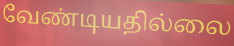
வேண்டியதில்லை